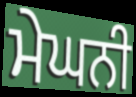
ਮੇਘਨੀ